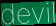
devil